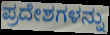
ಪ್ರದೇಶಗಳನ್ನು